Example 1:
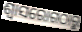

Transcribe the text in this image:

ଶ୍ୱାସରୋଗଠାରୁ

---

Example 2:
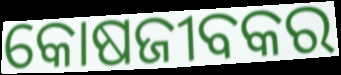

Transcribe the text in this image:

କୋଷଜୀବକର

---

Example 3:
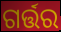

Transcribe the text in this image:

ଗର୍ତ୍ତର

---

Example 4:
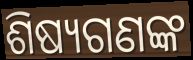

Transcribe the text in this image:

ଶିଷ୍ୟଗଣଙ୍କ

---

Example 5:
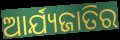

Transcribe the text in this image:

ଆର୍ଯ୍ୟଜାତିର